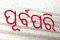
ପୂର୍ବପରି